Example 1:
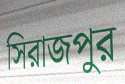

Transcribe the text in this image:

সিরাজপুর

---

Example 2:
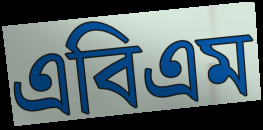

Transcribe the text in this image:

এবিএম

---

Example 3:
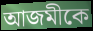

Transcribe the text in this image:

আজমীকে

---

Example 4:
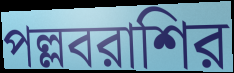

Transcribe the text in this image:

পল্লবরাশির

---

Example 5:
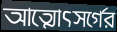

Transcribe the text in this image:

আত্মোৎসর্গের